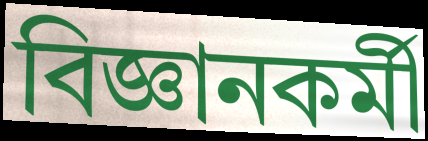
বিজ্ঞানকর্মী